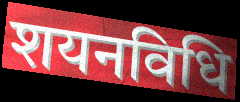
शयनविधि